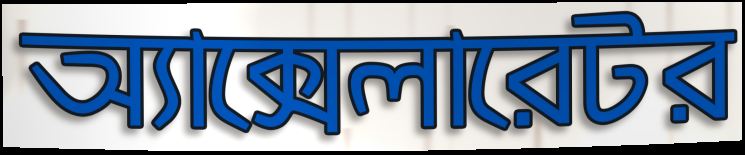
অ্যাক্সেলারেটর